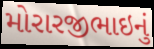
મોરારજીભાઇનું